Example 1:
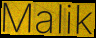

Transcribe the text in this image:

Malik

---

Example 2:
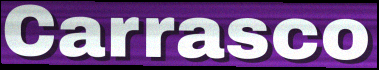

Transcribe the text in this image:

Carrasco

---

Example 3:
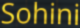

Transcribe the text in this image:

Sohini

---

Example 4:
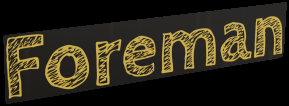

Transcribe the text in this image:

Foreman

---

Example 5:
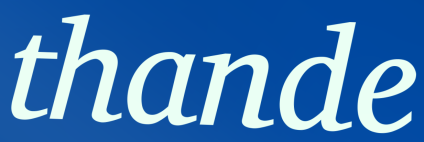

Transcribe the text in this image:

thande